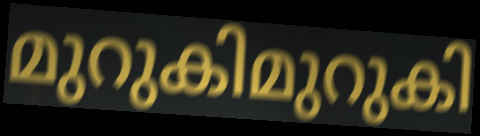
മുറുകിമുറുകി